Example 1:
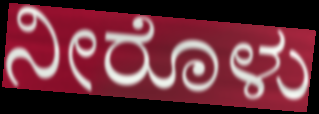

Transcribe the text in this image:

ನೀರೊಳು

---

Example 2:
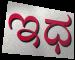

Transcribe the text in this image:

ಇಧ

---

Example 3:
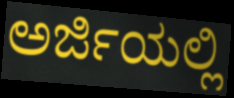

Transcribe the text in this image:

ಅರ್ಜಿಯಲ್ಲಿ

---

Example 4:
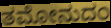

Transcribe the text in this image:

ತಮೋನುದಂ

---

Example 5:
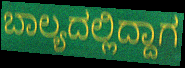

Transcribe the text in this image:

ಬಾಲ್ಯದಲ್ಲಿದ್ದಾಗ